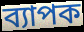
ব্যাপক